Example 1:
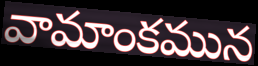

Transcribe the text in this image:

వామాంకమున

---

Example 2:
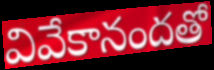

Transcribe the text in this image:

వివేకానందతో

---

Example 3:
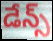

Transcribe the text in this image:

డేన్స్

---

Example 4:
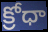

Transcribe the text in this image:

క్రోధా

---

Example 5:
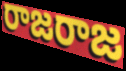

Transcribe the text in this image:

రాజరాజ